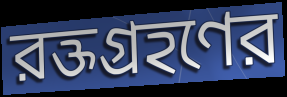
রক্তগ্রহণের